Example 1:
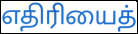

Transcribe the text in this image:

எதிரியைத்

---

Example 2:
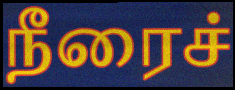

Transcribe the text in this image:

நீரைச்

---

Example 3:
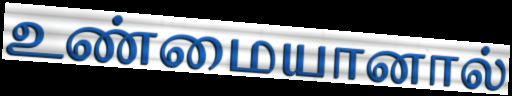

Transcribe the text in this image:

உண்மையானால்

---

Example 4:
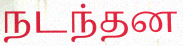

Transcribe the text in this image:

நடந்தன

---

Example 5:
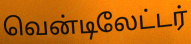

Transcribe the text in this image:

வென்டிலேட்டர்